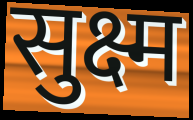
सुक्ष्म